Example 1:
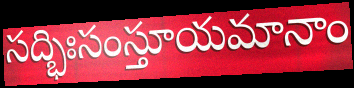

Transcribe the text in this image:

సద్భిఃసంస్తూయమానాం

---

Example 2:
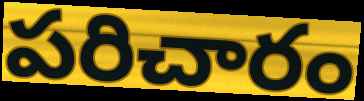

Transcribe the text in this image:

పరిచారం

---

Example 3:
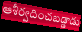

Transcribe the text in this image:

ఆశీర్వదించబడ్డాడు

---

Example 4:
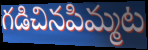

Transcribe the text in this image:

గడిచినపిమ్మట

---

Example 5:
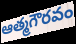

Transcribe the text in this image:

ఆత్మగౌరవం